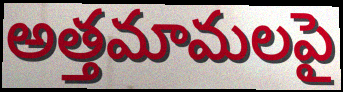
అత్తమామలపై